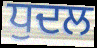
ਧੁਦਲ